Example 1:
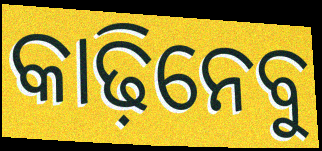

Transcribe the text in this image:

କାଢ଼ିନେବୁ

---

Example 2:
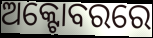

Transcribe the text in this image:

ଅକ୍ଟୋବରରେ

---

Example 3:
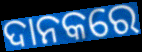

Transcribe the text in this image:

ଦାନକରେ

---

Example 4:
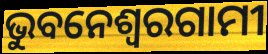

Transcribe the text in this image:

ଭୁବନେଶ୍ୱରଗାମୀ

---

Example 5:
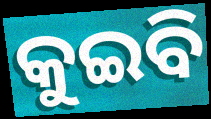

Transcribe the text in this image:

କୁଇବି